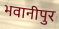
भवानीपुर